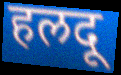
हलदू